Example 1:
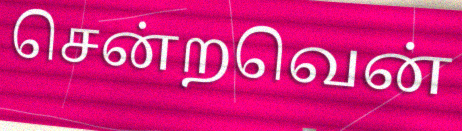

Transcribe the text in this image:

சென்றவென்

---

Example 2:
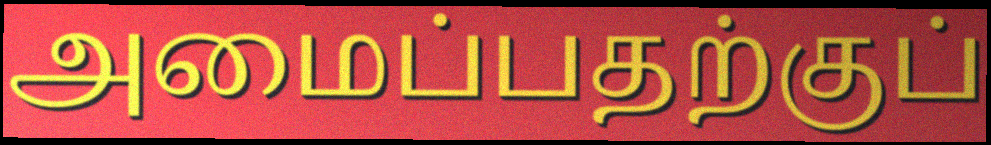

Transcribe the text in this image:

அமைப்பதற்குப்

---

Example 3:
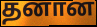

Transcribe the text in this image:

தனான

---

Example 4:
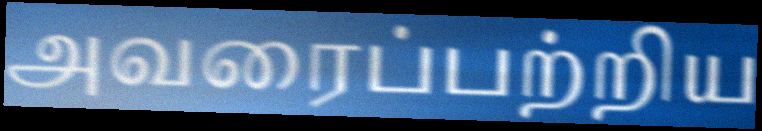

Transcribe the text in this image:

அவரைப்பற்றிய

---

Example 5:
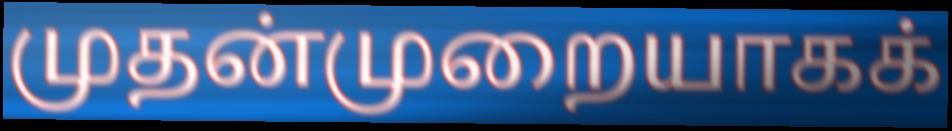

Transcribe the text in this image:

முதன்முறையாகக்